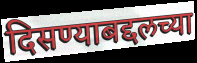
दिसण्याबद्दलच्या